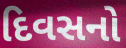
દિવસનો